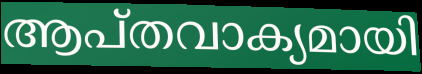
ആപ്തവാക്യമായി